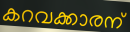
കറവക്കാരന്